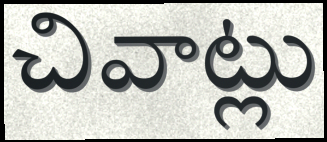
చివాట్లు